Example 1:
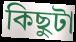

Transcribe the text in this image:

কিছুটা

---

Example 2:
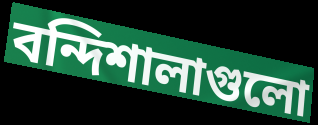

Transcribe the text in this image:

বন্দিশালাগুলো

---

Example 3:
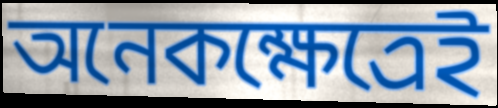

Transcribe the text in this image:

অনেকক্ষেত্রেই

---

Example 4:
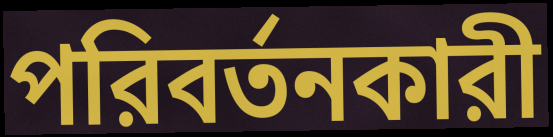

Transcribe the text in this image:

পরিবর্তনকারী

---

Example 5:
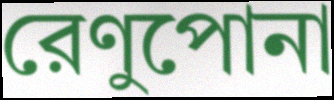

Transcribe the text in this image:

রেণুপোনা